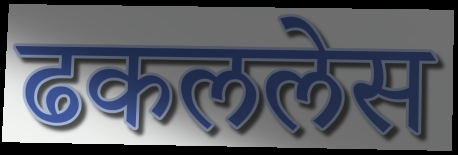
ढकललेस